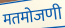
मतमोजणी